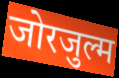
जोरजुल्म